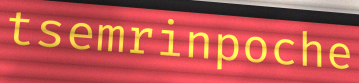
tsemrinpoche